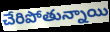
చేరిపోతున్నాయి